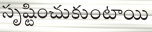
సృష్టించుకుంటాయి